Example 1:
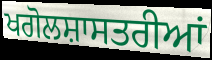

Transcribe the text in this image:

ਖਗੋਲਸ਼ਾਸਤਰੀਆਂ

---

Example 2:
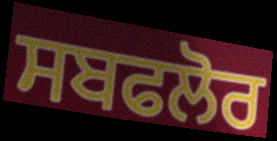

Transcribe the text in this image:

ਸਬਫਲੋਰ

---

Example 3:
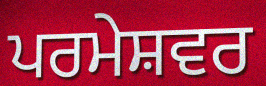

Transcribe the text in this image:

ਪਰਮੇਸ਼ਵਰ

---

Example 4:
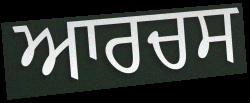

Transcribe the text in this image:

ਆਰਚਸ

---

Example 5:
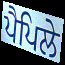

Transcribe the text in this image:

ਪੈਪਿਲੇ